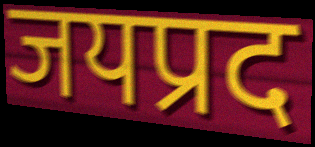
जयप्रद